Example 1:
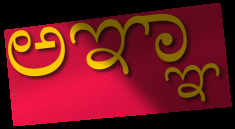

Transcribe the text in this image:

ಅಞ್ಞಾ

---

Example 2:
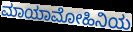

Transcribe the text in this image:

ಮಾಯಾಮೋಹಿನಿಯ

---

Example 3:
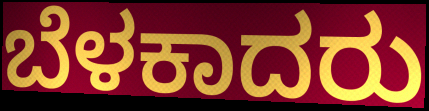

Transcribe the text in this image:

ಬೆಳಕಾದರು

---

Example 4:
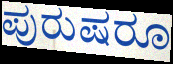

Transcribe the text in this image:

ಪುರುಷರೂ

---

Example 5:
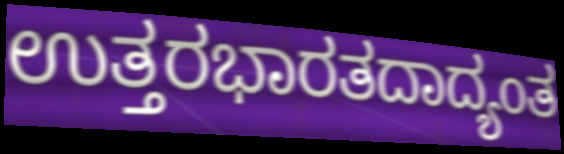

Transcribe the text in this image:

ಉತ್ತರಭಾರತದಾದ್ಯಂತ